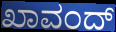
ಖಾವಂದ್